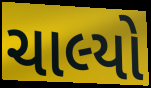
ચાલ્યો